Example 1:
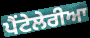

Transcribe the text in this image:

ਪੈਂਟੇਲੇਰੀਆ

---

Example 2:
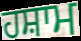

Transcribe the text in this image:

ਹਸ਼ਾਮ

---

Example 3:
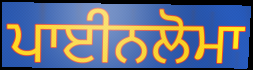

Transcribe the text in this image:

ਪਾਈਨਲੋਮਾ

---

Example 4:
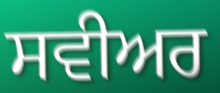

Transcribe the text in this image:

ਸਵੀਅਰ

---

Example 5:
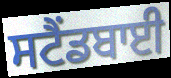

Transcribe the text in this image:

ਸਟੈਂਡਬਾਈ